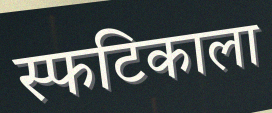
स्फटिकाला